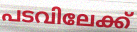
പടവിലേക്ക്